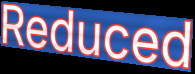
Reduced